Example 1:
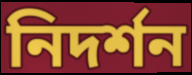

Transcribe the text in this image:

নিদর্শন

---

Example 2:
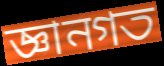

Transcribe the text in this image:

জ্ঞানগত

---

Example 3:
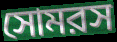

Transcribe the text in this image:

সোমরস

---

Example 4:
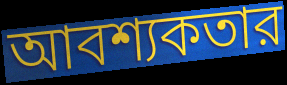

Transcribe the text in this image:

আবশ্যকতার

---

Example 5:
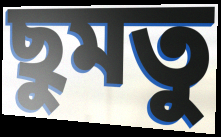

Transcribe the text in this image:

ছুমতু